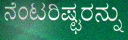
ನೆಂಟರಿಷ್ಟರನ್ನು